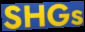
SHGs